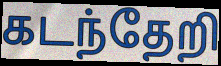
கடந்தேறி